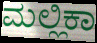
ಮಲ್ಲಿಕಾ